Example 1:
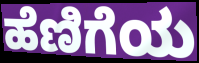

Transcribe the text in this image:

ಹೆಣಿಗೆಯ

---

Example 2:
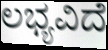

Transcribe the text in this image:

ಲಭ್ಯವಿದೆ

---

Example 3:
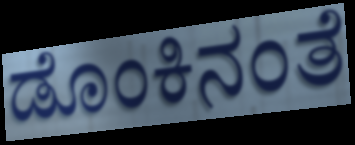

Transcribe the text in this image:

ಡೊಂಕಿನಂತೆ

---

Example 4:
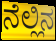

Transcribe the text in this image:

ನೆಲ್ಲಿನ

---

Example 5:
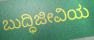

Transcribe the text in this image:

ಬುದ್ಧಿಜೀವಿಯ